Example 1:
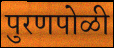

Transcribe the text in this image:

पुरणपोळी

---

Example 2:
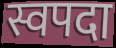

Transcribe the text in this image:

स्वपदा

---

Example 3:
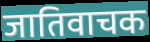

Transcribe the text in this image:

जातिवाचक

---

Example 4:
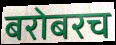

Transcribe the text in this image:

बरोबरच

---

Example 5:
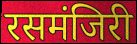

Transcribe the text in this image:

रसमंजिरी